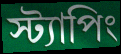
স্ট্যাপিং